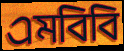
এমবিবি